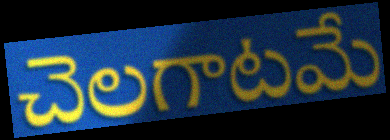
చెలగాటమే